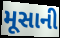
મૂસાની